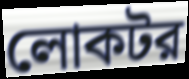
লোকটর